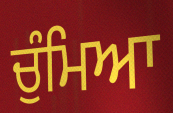
ਚੁੰਮਿਆ